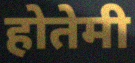
होतेमी